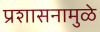
प्रशासनामुळे